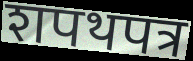
शपथपत्र